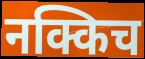
नक्किच